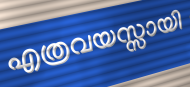
എത്രവയസ്സായി